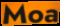
Moa